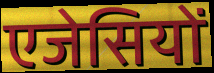
एजेसियों